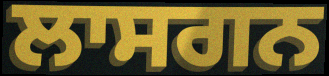
ਲਾਸਗਨ